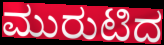
ಮುರುಟಿದ